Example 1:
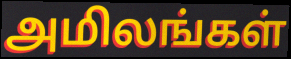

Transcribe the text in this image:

அமிலங்கள்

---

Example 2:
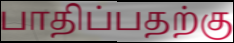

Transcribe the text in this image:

பாதிப்பதற்கு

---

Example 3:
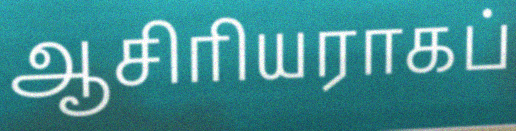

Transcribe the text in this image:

ஆசிரியராகப்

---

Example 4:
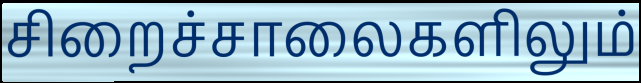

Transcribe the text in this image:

சிறைச்சாலைகளிலும்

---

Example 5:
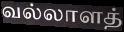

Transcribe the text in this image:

வல்லாளத்